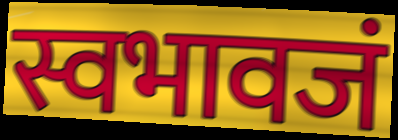
स्वभावजं